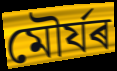
মৌৰ্যৰ